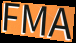
FMA